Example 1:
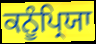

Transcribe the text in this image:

ਕਨੂੰਪ੍ਰਿਯਾ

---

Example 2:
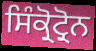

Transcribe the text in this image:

ਸਿੰਕ੍ਰੋਟ੍ਰੋਨ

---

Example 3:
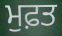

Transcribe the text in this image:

ਮੁਫ਼ਤ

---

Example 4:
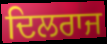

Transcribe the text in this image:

ਦਿਲਰਾਜ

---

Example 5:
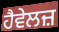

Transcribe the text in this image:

ਹੈਵੇਲਜ਼